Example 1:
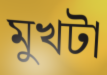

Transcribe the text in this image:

মুখটা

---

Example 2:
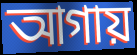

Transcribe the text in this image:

আগায়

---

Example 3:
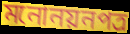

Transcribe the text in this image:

মনোনয়নপত্র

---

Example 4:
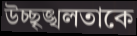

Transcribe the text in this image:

উচ্ছৃঙ্খলতাকে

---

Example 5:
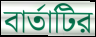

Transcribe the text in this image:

বার্তাটির